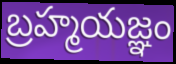
బ్రహ్మయజ్ఞం